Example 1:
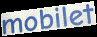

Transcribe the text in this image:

mobilet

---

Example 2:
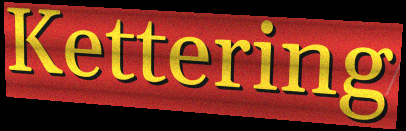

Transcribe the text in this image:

Kettering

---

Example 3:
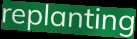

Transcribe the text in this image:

replanting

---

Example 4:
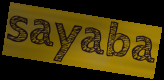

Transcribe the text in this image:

sayaba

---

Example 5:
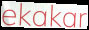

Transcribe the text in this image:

ekakar